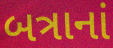
બત્રાનાં